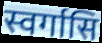
स्वर्गासि